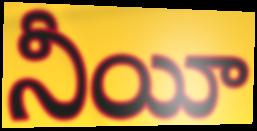
నీయీ